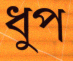
ধুপ